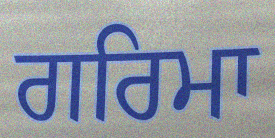
ਗਰਿਮਾ